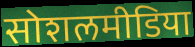
सोशलमीडिया